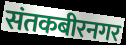
संतकबीरनगर